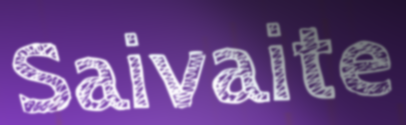
Saivaite